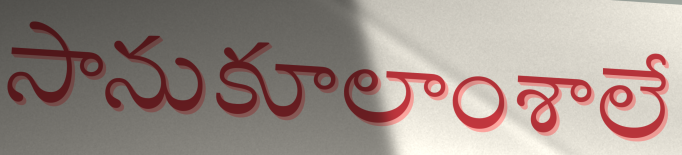
సానుకూలాంశాలే